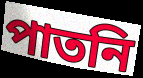
পাতনি